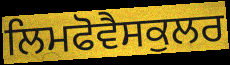
ਲਿਮਫੋਵੈਸਕੁਲਰ